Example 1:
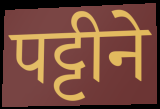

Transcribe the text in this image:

पट्टीने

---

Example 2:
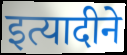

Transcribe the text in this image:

इत्यादीने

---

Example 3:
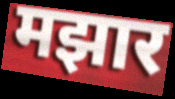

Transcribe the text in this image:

मझार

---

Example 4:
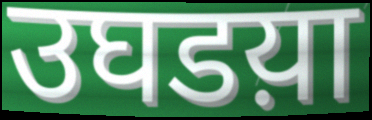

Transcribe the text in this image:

उघडय़ा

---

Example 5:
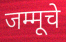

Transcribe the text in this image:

जम्मूचे